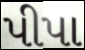
પીપા